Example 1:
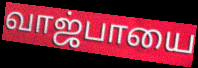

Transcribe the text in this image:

வாஜ்பாயை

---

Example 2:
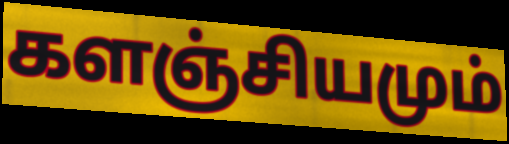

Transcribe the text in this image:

களஞ்சியமும்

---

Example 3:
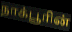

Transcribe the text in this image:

நாக்பூரின்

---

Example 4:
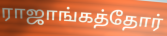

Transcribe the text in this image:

ராஜாங்கத்தோர்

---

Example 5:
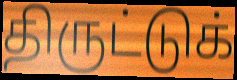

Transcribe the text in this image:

திருட்டுக்